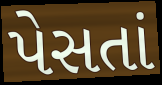
પેસતાં